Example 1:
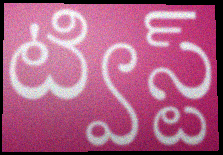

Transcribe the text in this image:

ట్విస్ట్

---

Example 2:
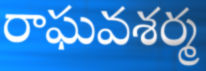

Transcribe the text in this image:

రాఘవశర్మ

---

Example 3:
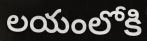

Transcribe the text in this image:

లయంలోకి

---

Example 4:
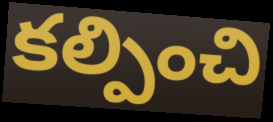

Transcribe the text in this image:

కల్పించి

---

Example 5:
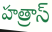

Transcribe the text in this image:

హత్రాస్